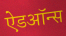
ऐडऑन्स